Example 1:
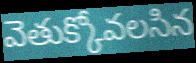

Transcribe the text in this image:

వెతుక్కోవలసిన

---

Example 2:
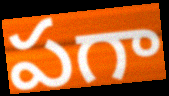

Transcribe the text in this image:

పగా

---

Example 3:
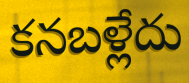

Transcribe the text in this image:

కనబళ్లేదు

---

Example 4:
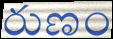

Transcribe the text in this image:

రుణం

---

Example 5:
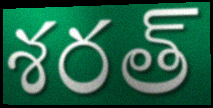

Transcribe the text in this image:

శరత్